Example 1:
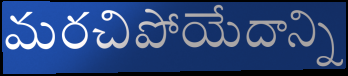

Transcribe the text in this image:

మరచిపోయేదాన్ని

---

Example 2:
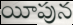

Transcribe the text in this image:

యీపున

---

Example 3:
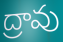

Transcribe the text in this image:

ద్రావు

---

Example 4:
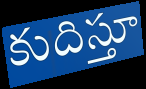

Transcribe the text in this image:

కుదిస్తూ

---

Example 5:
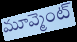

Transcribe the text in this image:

మూవ్మెంట్